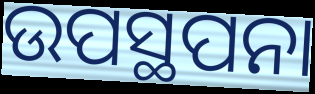
ଉପସ୍ଥପନା